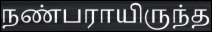
நண்பராயிருந்த